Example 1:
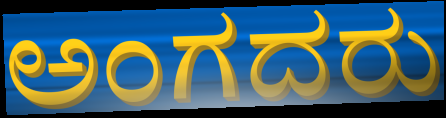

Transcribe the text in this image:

ಅಂಗದರು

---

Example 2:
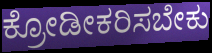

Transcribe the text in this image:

ಕ್ರೋಡೀಕರಿಸಬೇಕು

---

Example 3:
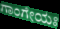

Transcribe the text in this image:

ಗಾಂಗೇಯಃ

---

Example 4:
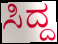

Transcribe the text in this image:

ಸಿದ್ದ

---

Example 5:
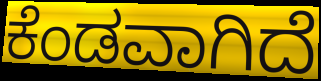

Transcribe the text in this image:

ಕೆಂಡವಾಗಿದೆ